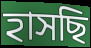
হাসছি